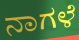
ನಾಗಳೆ